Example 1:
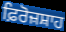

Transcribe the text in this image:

ਫ਼ਿਰੋਜ਼ਸ਼ਾਹ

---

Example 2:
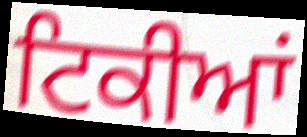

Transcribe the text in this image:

ਟਿਕੀਆਂ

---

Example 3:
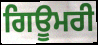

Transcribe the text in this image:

ਗਿਊਮਰੀ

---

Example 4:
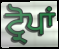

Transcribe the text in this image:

ਟ੍ਰੋਪਾਂ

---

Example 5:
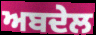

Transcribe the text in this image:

ਅਬਦੇਲ